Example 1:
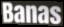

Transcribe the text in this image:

Banas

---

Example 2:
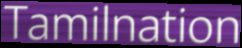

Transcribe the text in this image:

Tamilnation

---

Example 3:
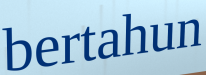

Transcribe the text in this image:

bertahun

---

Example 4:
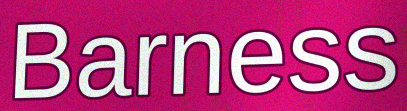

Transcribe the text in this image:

Barness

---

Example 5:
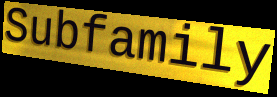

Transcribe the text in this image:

Subfamily